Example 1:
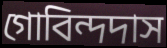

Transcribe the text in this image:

গোবিন্দদাস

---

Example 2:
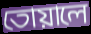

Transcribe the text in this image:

তোয়ালে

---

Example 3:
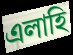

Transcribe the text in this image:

এলাহি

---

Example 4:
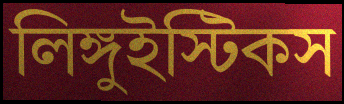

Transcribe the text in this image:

লিঙ্গুইস্টিকস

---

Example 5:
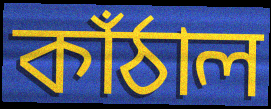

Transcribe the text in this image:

কাঁঠাল